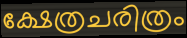
ക്ഷേത്രചരിത്രം